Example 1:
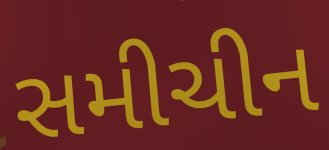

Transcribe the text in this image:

સમીચીન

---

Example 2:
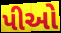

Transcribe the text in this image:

પીઓ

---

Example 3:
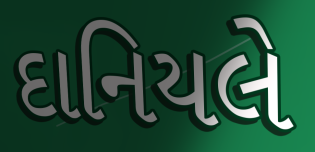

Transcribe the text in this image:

દાનિયલે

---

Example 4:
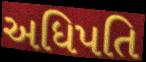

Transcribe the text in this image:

અધિપતિ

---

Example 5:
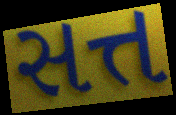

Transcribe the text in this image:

સત્ત